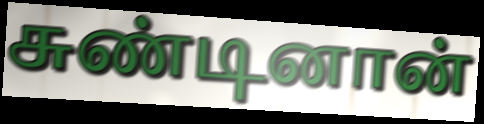
சுண்டினான்